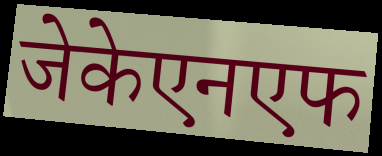
जेकेएनएफ